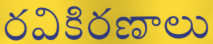
రవికిరణాలు